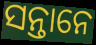
ସନ୍ତାନେ